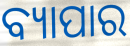
ବ୍ଯାପାର